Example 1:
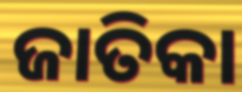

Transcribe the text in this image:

ଜାତିକା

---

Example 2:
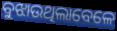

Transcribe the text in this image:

ବୁଝାଉଥିଲାବେଳେ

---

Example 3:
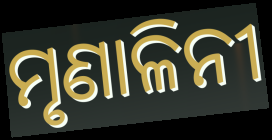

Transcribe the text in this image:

ମୃଣାଳିନୀ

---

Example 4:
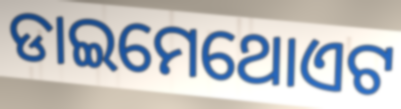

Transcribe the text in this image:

ଡାଇମେଥୋଏଟ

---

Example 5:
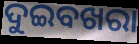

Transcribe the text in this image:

ଦୁଇବଖରା